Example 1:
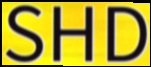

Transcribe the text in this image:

SHD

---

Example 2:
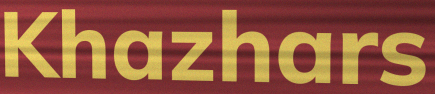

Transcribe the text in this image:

Khazhars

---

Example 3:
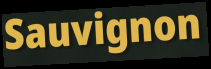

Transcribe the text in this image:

Sauvignon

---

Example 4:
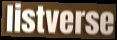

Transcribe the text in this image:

listverse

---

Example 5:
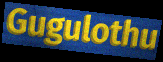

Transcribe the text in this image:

Gugulothu